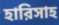
হারিসাহ